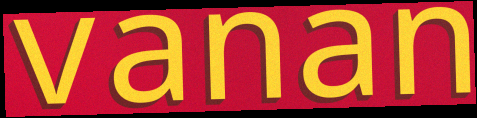
vanan